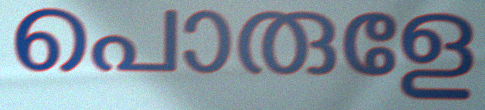
പൊരുളേ